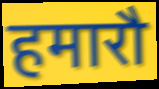
हमारौ